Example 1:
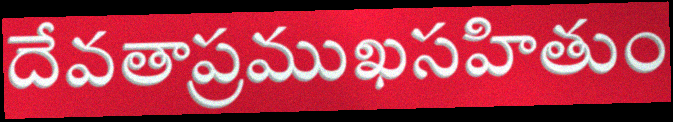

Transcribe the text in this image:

దేవతాప్రముఖసహితుం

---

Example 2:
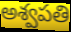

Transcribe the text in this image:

అశ్వపతి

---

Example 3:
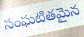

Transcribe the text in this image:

సంఘటితమైన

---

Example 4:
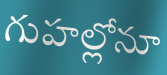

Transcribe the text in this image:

గుహల్లోనూ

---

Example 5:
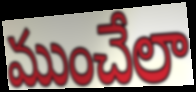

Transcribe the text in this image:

ముంచేలా